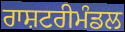
ਰਾਸ਼ਟਰੀਮੰਡਲ